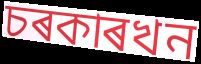
চৰকাৰখন